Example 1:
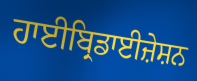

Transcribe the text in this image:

ਹਾਈਬ੍ਰਿਡਾਈਜ਼ੇਸ਼ਨ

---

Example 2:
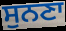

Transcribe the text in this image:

ਸੁਨਣਾ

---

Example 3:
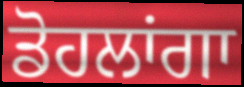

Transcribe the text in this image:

ਡੋਹਲਾਂਗਾ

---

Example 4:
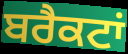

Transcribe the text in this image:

ਬਰੈਕਟਾਂ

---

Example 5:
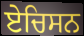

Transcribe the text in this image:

ਏਚਿਸਨ